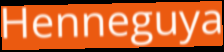
Henneguya